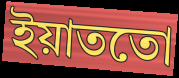
ইয়াততো